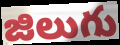
జిలుగు